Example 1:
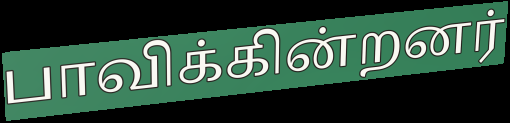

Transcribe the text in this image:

பாவிக்கின்றனர்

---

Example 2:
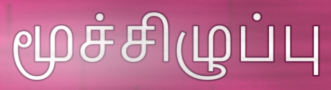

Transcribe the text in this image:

மூச்சிழுப்பு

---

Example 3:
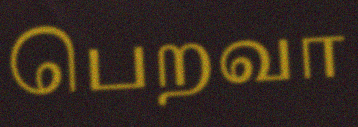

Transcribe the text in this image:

பெறவா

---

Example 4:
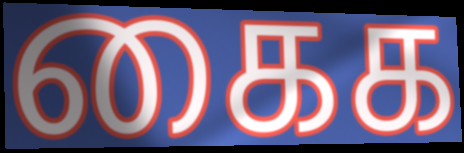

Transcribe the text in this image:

கைக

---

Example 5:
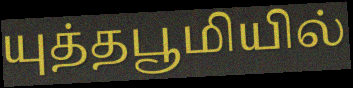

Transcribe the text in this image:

யுத்தபூமியில்